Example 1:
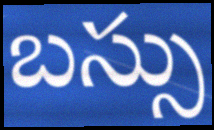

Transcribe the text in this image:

బస్సు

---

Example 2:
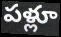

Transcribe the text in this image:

పళ్లూ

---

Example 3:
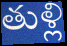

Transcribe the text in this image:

తుళ్లి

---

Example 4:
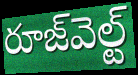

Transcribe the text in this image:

రూజ్‌వెల్ట్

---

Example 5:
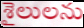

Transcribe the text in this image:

శైలులను